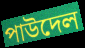
পাউদেল